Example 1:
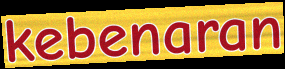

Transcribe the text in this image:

kebenaran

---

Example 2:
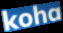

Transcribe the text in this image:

koha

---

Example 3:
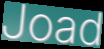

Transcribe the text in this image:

Joad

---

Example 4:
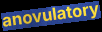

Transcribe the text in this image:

anovulatory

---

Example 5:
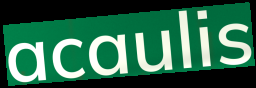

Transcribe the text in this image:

acaulis